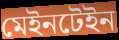
মেইনটেইন